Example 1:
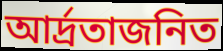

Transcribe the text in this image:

আর্দ্রতাজনিত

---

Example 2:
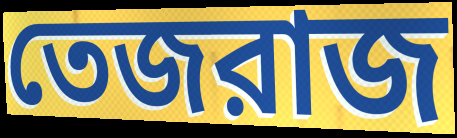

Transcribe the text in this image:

তেজরাজ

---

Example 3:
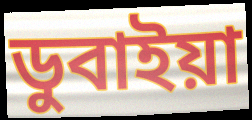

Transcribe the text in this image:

ডুবাইয়া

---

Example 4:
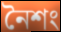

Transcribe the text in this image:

নৈশং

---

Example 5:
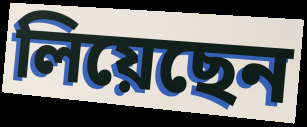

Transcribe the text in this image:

লিয়েছেন